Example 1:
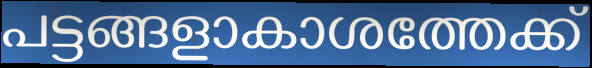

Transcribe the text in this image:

പട്ടങ്ങളാകാശത്തേക്ക്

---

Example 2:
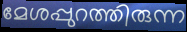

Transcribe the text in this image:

മേശപ്പുറത്തിരുന്ന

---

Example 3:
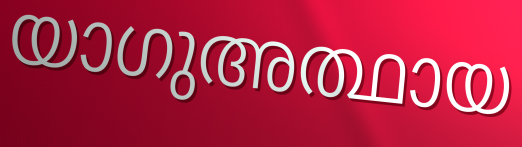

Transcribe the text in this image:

യാഗുഅത്ഥായ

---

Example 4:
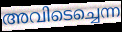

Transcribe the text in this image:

അവിടെച്ചെന്ന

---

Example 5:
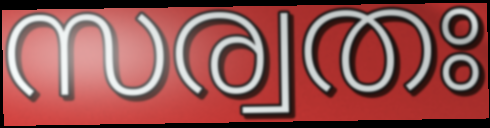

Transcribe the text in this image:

സര്വതഃ